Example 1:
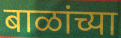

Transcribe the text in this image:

बाळांच्या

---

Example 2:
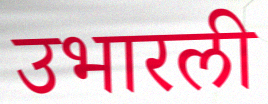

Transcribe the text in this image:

उभारली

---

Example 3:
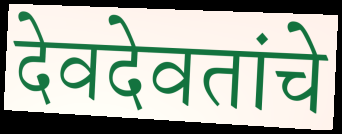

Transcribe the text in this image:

देवदेवतांचे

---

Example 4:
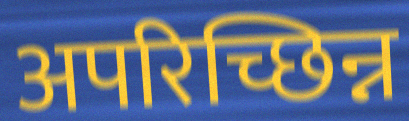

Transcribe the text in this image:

अपरिच्छिन्न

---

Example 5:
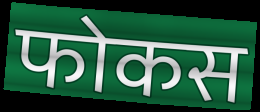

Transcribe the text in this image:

फोकस